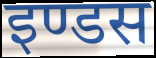
इण्डस